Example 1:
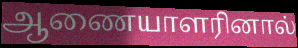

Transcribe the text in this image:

ஆணையாளரினால்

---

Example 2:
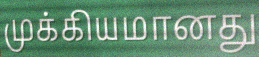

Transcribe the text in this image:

முக்கியமானது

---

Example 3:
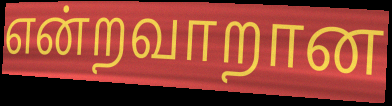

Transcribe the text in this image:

என்றவாறான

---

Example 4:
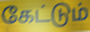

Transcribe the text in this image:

கேட்டும்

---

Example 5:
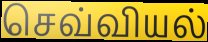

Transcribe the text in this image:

செவ்வியல்